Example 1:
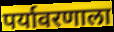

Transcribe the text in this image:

पर्यावरणाला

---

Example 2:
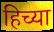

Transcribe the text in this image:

हिच्या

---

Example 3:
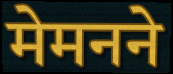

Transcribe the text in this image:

मेमनने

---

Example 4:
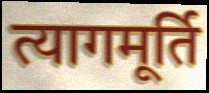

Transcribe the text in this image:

त्यागमूर्ति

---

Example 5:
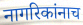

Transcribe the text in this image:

नागरिकांनाच